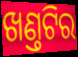
ଖଣ୍ତଟିର